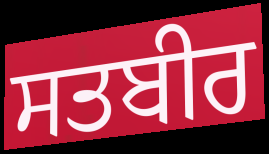
ਸਤਬੀਰ